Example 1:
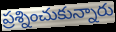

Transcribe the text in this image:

ప్రశ్నించుకున్నారు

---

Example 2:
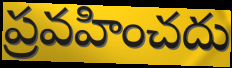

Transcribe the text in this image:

ప్రవహించదు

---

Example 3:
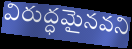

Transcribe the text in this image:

విరుద్ధమైనవని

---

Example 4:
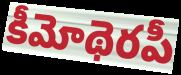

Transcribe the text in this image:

కీమోథెరపీ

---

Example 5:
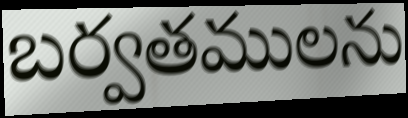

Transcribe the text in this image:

బర్వతములను